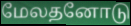
மேலதனோடு